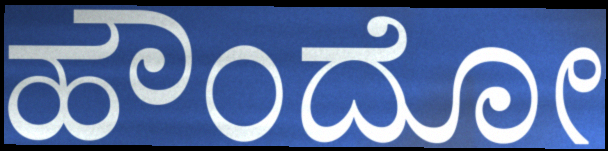
ಹೌಂದೋ